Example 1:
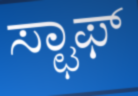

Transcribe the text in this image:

ಸ್ಟಾಫ್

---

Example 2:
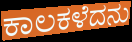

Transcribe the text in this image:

ಕಾಲಕಳೆದನು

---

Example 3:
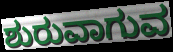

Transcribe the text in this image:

ಶುರುವಾಗುವ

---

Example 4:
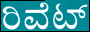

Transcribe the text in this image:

ರಿವೆಟ್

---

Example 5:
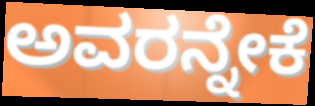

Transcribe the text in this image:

ಅವರನ್ನೇಕೆ